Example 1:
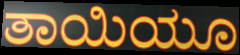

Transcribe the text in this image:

ತಾಯಿಯೂ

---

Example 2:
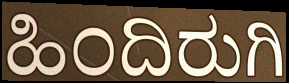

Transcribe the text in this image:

ಹಿಂದಿರುಗಿ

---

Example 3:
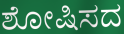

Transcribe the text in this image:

ಶೋಷಿಸದ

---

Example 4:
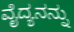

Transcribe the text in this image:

ವೈದ್ಯನನ್ನು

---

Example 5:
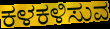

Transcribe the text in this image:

ಕಳಕಳಿಸುವ